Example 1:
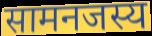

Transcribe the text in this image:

सामनजस्य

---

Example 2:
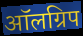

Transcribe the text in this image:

ऑलग्रिप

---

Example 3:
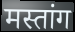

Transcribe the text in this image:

मस्तांग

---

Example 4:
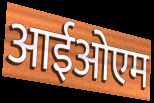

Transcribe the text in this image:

आईओएम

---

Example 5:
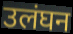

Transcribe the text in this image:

उलंघन